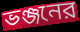
ভঞ্জনের